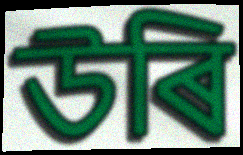
উৰি